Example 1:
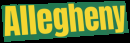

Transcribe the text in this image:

Allegheny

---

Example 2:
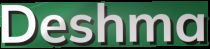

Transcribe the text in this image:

Deshma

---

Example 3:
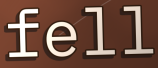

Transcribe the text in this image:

fell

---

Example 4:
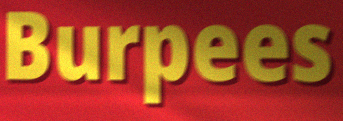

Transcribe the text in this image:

Burpees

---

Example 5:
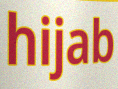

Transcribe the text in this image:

hijab